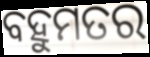
ବହୁମତର